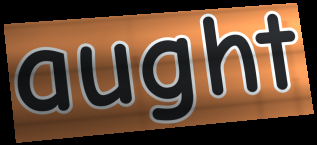
aught